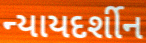
ન્યાયદર્શીન